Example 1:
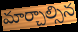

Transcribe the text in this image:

మార్చాల్సిన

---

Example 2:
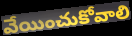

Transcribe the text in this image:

వేయించుకోవాలి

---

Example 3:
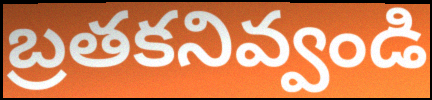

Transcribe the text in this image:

బ్రతకనివ్వండి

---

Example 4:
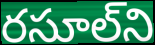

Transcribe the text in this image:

రసూల్‌ని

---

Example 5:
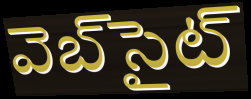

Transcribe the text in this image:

వెబ్‌సైట్